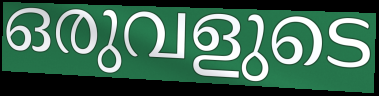
ഒരുവളുടെ